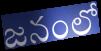
జనంలో